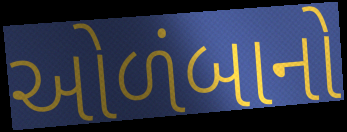
ઓળંબાનો